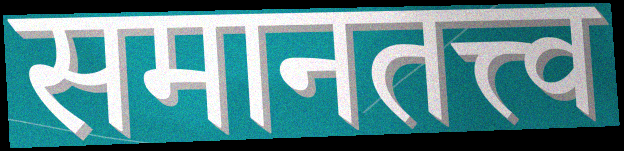
समानतत्त्व